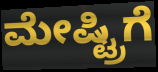
ಮೇಷ್ಟ್ರಿಗೆ